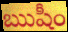
ఋషీం